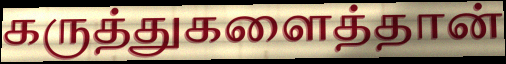
கருத்துகளைத்தான்